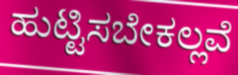
ಹುಟ್ಟಿಸಬೇಕಲ್ಲವೆ